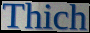
Thich